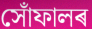
সোঁফালৰ